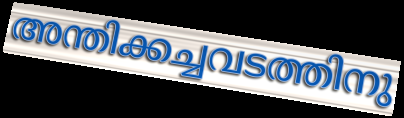
അന്തിക്കച്ചവടത്തിനു